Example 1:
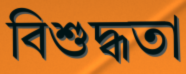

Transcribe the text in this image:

বিশুদ্ধতা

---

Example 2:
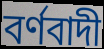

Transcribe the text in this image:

বৰ্ণবাদী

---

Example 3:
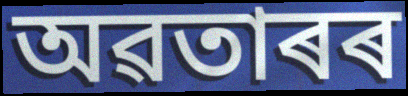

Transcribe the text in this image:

অৱতাৰৰ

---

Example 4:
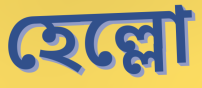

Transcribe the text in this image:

হেল্লো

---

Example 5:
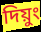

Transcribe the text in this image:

দিয়ুং